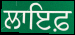
ਲਾਇਫ਼